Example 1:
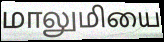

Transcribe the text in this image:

மாலுமியை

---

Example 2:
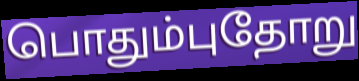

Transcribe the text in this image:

பொதும்புதோறு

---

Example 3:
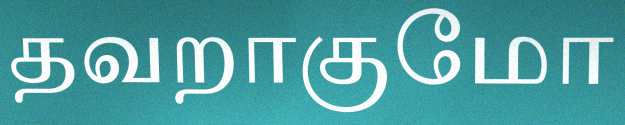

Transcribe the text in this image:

தவறாகுமோ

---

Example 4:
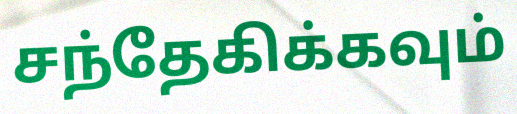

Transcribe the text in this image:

சந்தேகிக்கவும்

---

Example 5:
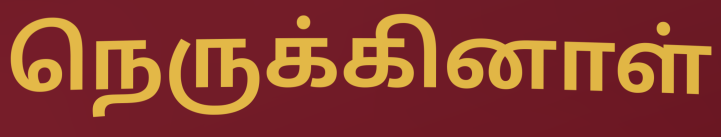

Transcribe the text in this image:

நெருக்கினாள்